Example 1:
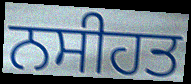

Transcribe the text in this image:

ਨਸੀਹਤ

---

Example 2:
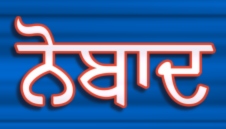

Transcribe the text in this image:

ਨੋਬਾਦ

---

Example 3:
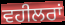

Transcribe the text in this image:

ਵਹੀਲਰਾਂ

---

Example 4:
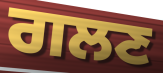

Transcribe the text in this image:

ਗਲਣ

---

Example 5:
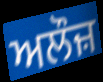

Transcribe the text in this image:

ਅਲੌਜ਼